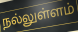
நல்லுள்ளம்